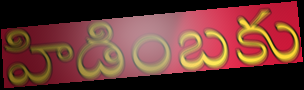
హిడింబకు